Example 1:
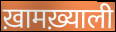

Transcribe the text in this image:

ख़ामख़्याली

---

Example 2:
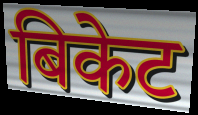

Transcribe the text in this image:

बिकेट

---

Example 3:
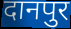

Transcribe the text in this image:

दानपुर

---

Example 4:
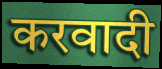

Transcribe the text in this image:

करवादी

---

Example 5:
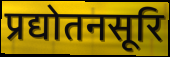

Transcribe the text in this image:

प्रद्योतनसूरि